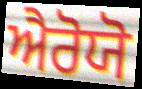
ਐਰੋਯੋ